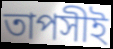
তাপসীই